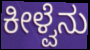
ಕೀಳ್ವೆನು